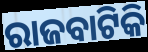
ରାଜବାଟିକି